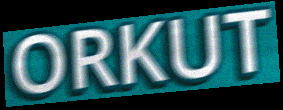
ORKUT